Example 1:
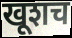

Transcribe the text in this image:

खूशच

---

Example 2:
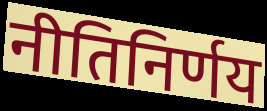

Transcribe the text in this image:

नीतिनिर्णय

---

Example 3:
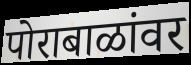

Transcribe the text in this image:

पोराबाळांवर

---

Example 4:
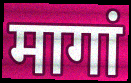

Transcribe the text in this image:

मागां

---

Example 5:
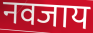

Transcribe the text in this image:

नवजाय